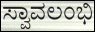
ಸ್ವಾವಲಂಭಿ